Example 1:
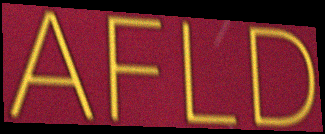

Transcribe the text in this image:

AFLD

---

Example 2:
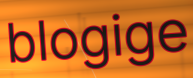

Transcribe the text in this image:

blogige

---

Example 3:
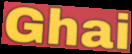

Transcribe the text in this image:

Ghai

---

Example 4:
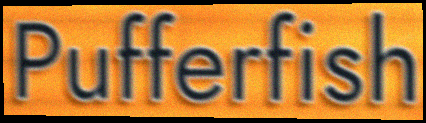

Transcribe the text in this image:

Pufferfish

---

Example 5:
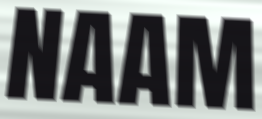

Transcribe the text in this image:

NAAM